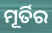
ମୂର୍ତିର